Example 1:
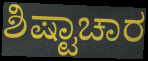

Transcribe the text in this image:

ಶಿಷ್ಟಾಚಾರ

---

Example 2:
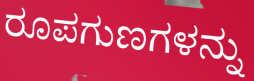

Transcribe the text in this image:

ರೂಪಗುಣಗಳನ್ನು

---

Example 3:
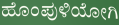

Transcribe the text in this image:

ಹೊಂಪುಳಿಯೋಗಿ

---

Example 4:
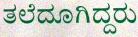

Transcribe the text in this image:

ತಲೆದೂಗಿದ್ದರು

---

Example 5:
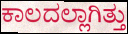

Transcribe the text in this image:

ಕಾಲದಲ್ಲಾಗಿತ್ತು